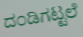
ದಂಡಿಗಟ್ಟಲೆ